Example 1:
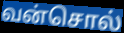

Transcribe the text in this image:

வன்சொல்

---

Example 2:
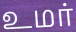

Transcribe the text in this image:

உமர்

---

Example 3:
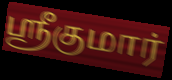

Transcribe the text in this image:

ஸ்ரீகுமார்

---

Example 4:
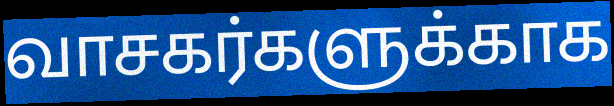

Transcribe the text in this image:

வாசகர்களுக்காக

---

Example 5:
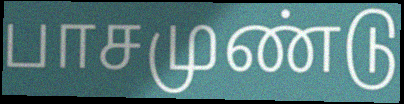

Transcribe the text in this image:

பாசமுண்டு